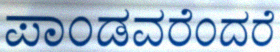
ಪಾಂಡವರೆಂದರೆ